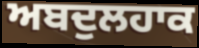
ਅਬਦੁਲਹਾਕ